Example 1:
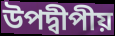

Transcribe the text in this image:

উপদ্বীপীয়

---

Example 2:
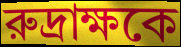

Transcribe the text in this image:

রুদ্রাক্ষকে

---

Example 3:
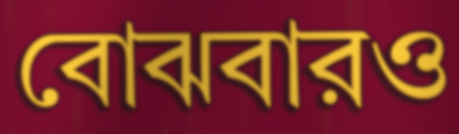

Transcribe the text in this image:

বোঝবারও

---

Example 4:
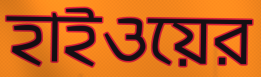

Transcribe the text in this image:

হাইওয়ের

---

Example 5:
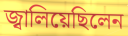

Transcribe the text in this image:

জ্বালিয়েছিলেন